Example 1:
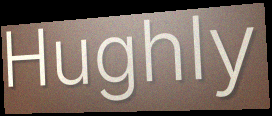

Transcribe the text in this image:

Hughly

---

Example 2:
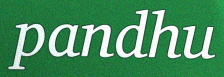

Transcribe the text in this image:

pandhu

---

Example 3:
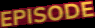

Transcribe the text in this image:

EPISODE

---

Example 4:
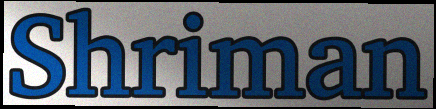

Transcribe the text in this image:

Shriman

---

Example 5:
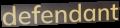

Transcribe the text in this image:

defendant